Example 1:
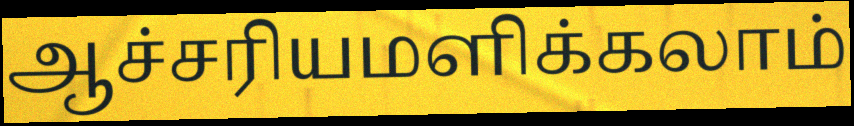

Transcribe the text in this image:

ஆச்சரியமளிக்கலாம்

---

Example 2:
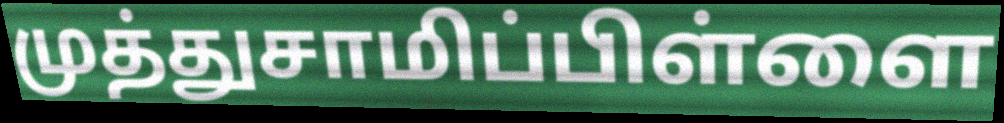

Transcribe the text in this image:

முத்துசாமிப்பிள்ளை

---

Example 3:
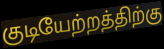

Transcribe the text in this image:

குடியேற்றத்திற்கு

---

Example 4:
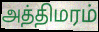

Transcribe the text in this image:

அத்திமரம்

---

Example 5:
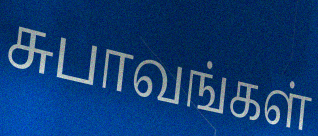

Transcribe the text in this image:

சுபாவங்கள்